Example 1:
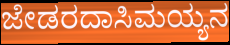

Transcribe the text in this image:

ಜೇಡರದಾಸಿಮಯ್ಯನ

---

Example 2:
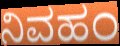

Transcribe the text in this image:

ನಿವಹಂ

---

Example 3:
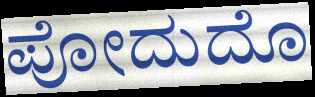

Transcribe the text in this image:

ಪೋದುದೊ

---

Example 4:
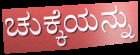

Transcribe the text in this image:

ಚುಕ್ಕೆಯನ್ನು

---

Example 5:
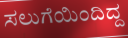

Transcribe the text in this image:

ಸಲುಗೆಯಿಂದಿದ್ದ